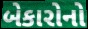
બેકારોનો